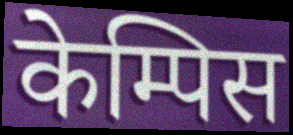
केम्पिस